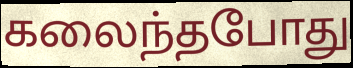
கலைந்தபோது